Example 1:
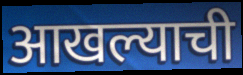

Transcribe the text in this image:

आखल्याची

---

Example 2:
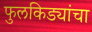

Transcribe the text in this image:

फुलकिड्यांचा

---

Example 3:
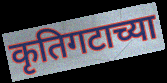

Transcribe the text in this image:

कृतिगटाच्या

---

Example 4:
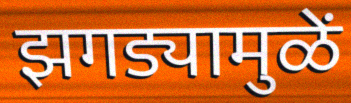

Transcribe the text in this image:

झगड्यामुळें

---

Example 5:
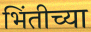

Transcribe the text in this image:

भिंतीच्या